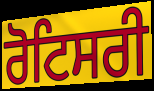
ਰੋਟਿਸਰੀ